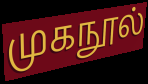
முகநூல்